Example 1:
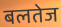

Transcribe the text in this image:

बलतेज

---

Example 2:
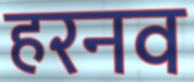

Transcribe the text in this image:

हरनव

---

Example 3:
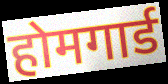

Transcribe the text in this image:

होमगार्ड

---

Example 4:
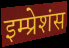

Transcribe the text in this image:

इम्प्रेशंस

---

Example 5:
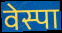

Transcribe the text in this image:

वेस्‍पा